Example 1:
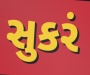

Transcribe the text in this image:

સુકરં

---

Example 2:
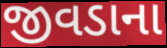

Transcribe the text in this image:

જીવડાના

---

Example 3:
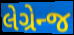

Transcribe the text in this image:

લેગ્રેન્જ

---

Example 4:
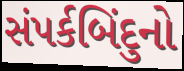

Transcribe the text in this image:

સંપર્કબિંદુનો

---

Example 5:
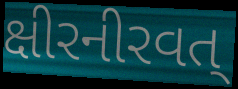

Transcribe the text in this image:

ક્ષીરનીરવત્